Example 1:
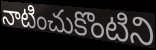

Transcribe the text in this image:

నాటించుకొంటిని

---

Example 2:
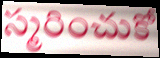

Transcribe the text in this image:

స్మరించుకో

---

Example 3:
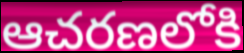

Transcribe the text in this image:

ఆచరణలోకి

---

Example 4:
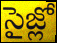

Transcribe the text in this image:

సైజ్లో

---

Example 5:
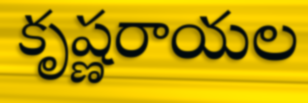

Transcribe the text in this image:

కృష్ణరాయల